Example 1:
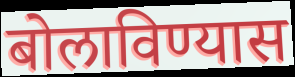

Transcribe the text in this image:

बोलाविण्यास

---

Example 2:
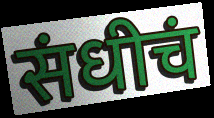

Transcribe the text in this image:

संधीचं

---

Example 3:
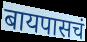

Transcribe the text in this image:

बायपासचं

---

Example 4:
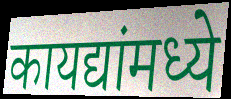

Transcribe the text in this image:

कायद्यांमध्ये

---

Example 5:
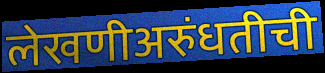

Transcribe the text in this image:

लेखणीअरुंधतीची